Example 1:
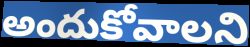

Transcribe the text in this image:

అందుకోవాలని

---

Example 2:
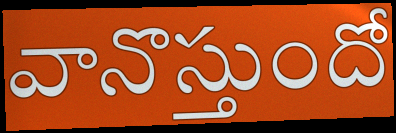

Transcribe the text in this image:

వానొస్తుందో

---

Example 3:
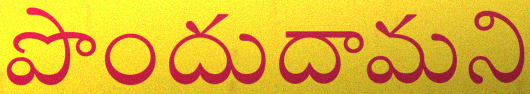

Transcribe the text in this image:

పొందుదామని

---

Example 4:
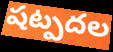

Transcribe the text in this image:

షట్పదల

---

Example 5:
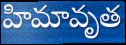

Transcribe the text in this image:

హిమావృత